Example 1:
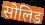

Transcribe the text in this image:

सोलिड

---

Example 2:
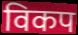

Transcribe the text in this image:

विकप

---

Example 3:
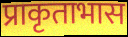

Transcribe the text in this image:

प्राकृताभास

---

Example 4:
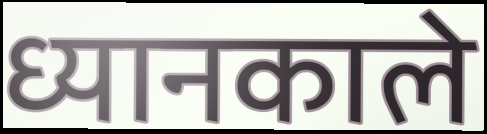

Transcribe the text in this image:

ध्यानकाले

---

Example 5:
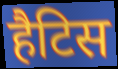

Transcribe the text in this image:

हैटिस